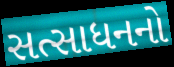
સત્સાધનનો